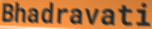
Bhadravati